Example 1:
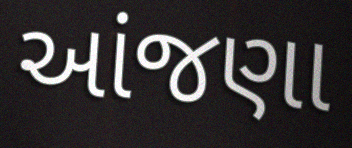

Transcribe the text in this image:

આંજણા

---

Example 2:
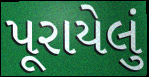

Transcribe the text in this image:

પૂરાયેલું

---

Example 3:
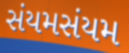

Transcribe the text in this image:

સંયમસંયમ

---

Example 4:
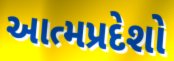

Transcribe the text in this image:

આત્મપ્રદેશો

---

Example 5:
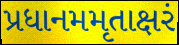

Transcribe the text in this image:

પ્રધાનમમૃતાક્ષરં